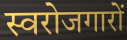
स्वरोजगारों